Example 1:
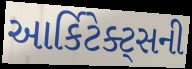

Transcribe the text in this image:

આર્કિટેક્ટ્સની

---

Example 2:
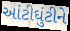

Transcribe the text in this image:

આંટીઘુંટીને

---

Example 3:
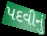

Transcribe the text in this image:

પદવીનું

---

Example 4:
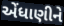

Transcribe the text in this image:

એંધાણીને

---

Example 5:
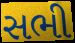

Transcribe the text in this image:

સભી